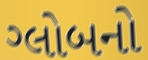
ગ્લોબનો